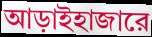
আড়াইহাজারে